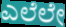
ಎಲೆಲೇ